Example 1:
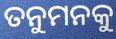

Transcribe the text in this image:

ତନୁମନକୁ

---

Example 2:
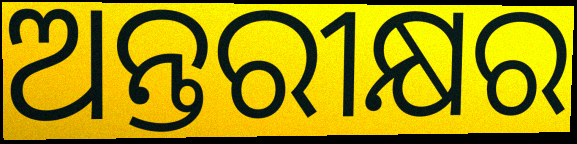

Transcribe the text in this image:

ଅନ୍ତରୀକ୍ଷର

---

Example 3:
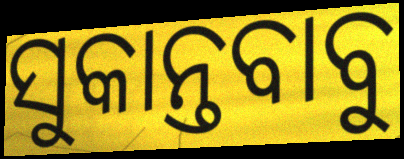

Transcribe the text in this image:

ସୁକାନ୍ତବାବୁ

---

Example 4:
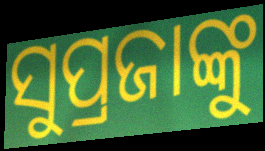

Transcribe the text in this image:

ସୁପ୍ରଜାଙ୍କୁ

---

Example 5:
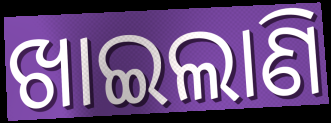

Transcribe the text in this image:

ଖାଇଲାଣି